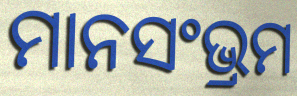
ମାନସଂଭ୍ରମ